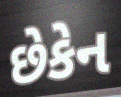
છેકેન